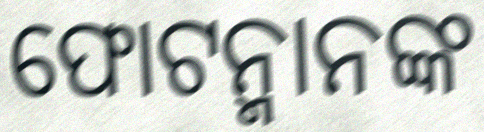
ଫୋଟନ୍ମାନଙ୍କ